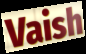
Vaish